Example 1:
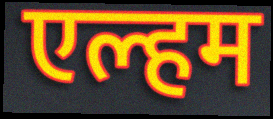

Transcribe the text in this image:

एल्हम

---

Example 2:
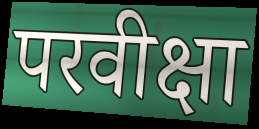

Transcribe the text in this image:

परवीक्षा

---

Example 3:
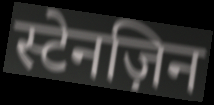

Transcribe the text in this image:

स्टेनज़िन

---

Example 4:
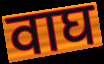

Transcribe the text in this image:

वाघ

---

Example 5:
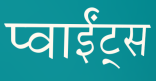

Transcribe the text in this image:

प्वाईंट्स